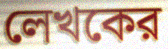
লেখকের